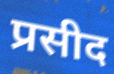
प्रसीद